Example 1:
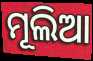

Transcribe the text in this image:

ମୂଲିଆ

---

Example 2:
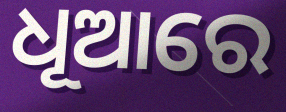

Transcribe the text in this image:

ଧୂଆରେ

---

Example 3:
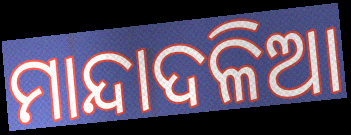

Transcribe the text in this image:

ମାନ୍ଦାଦଳିଆ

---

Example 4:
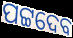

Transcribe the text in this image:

ପଟ୍ଟଦେବ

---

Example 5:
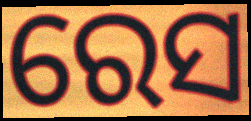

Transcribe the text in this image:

ରେସ